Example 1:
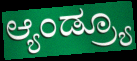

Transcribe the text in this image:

ಆ್ಯಂಡ್ರ್ಯೂ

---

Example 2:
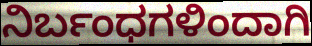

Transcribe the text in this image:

ನಿರ್ಬಂಧಗಳಿಂದಾಗಿ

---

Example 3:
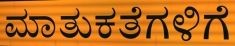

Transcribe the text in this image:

ಮಾತುಕತೆಗಳಿಗೆ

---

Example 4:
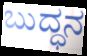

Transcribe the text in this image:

ಬುದ್ಧನ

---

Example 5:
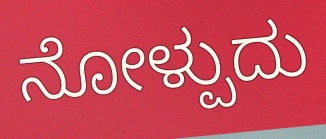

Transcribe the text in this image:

ನೋಳ್ಪುದು